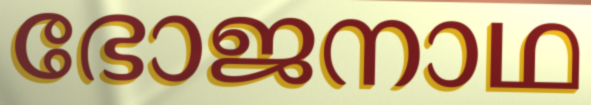
ഭോജനാഥ